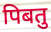
पिबतु